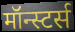
मॉन्स्टर्स